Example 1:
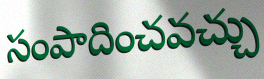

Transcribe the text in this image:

సంపాదించవచ్చు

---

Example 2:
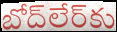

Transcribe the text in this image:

బోద్‌లేర్‌కు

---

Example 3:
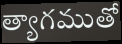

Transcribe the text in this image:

త్యాగముతో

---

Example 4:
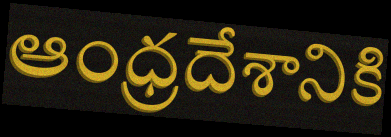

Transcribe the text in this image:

ఆంధ్రదేశానికి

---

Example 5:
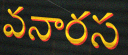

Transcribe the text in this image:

వనారస